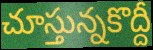
చూస్తున్నకొద్దీ